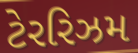
ટેરરિઝમ